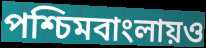
পশ্চিমবাংলায়ও